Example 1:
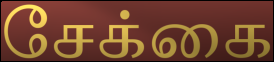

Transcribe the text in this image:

சேக்கை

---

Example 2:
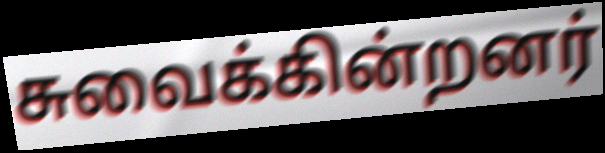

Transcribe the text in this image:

சுவைக்கின்றனர்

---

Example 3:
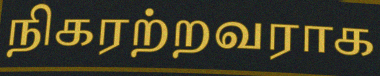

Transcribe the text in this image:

நிகரற்றவராக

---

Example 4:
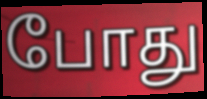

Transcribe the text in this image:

போது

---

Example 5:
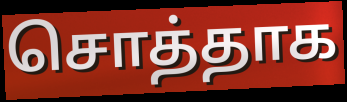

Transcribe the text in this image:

சொத்தாக